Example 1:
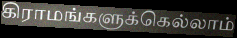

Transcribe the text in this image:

கிராமங்களுக்கெல்லாம்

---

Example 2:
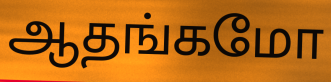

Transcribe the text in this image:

ஆதங்கமோ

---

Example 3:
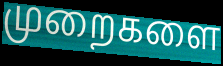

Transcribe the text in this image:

முறைகளை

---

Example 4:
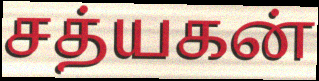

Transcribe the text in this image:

சத்யகன்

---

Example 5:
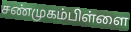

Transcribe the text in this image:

சண்முகம்பிள்ளை